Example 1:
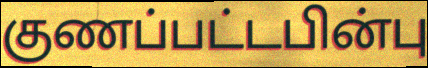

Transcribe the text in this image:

குணப்பட்டபின்பு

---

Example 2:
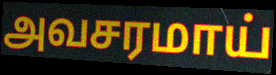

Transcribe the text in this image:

அவசரமாய்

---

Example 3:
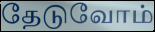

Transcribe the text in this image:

தேடுவோம்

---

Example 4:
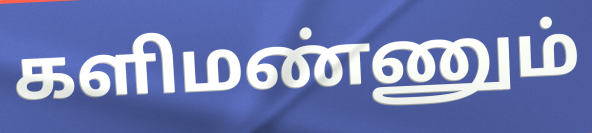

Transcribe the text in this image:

களிமண்ணும்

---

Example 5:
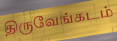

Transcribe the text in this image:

திருவேங்கடம்